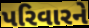
પરિવારને